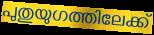
പുതുയുഗത്തിലേക്ക്